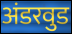
अंडरवुड